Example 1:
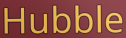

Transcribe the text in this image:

Hubble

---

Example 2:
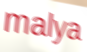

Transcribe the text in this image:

malya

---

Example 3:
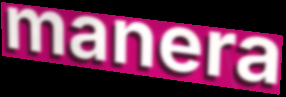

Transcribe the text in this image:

manera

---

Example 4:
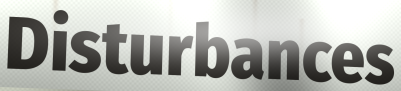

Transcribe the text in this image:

Disturbances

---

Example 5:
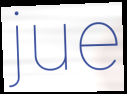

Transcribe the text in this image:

jue